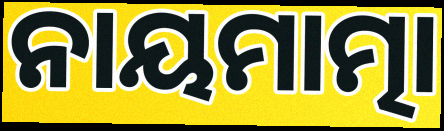
ନାୟମାତ୍ମା